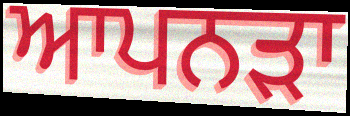
ਆਪਨੜਾ